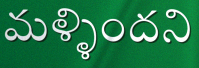
మళ్ళిందని